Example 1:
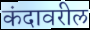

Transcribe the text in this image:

कंदावरील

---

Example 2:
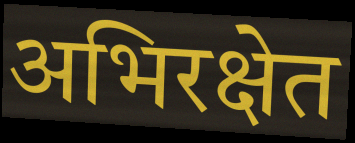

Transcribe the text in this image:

अभिरक्षेत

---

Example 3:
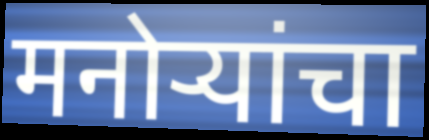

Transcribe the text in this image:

मनोर्‍यांचा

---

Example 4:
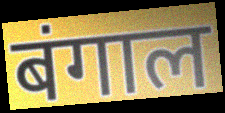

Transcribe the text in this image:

बंगाल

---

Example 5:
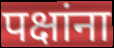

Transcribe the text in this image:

पक्षांना